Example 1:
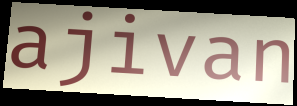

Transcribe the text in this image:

ajivan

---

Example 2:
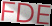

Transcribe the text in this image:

FDE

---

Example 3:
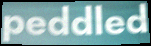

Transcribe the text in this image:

peddled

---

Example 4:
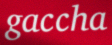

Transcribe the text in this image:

gaccha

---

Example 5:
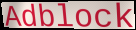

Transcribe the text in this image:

Adblock